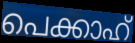
പെക്കാഹ്